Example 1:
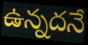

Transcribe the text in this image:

ఉన్నదనే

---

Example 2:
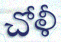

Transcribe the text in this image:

చోళీ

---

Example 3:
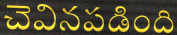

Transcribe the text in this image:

చెవినపడింది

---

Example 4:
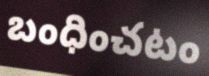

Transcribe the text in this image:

బంధించటం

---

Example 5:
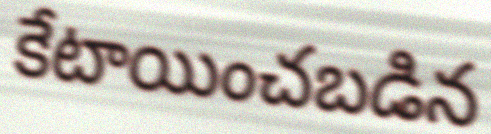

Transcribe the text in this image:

కేటాయించబడిన